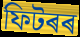
ফিটৰৰ